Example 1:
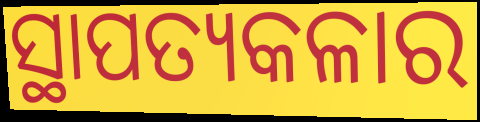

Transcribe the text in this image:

ସ୍ଥାପତ୍ୟକଳାର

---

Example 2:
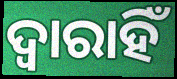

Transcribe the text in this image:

ଦ୍ୱାରାହିଁ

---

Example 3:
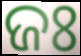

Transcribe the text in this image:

ଜଃ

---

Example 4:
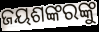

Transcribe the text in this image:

ଜୟଶଙ୍କରଙ୍କୁ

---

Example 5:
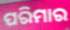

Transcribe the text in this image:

ପରିମାର